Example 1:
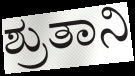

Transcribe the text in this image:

ಶ್ರುತಾನಿ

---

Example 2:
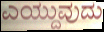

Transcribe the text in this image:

ಎಯ್ದುವುದು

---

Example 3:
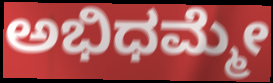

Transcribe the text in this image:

ಅಭಿಧಮ್ಮೇ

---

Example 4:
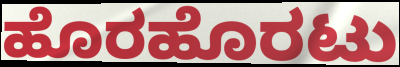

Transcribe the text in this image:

ಹೊರಹೊರಟು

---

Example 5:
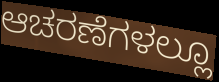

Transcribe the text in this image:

ಆಚರಣೆಗಳಲ್ಲೂ